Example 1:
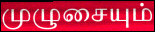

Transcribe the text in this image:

முழுசையும்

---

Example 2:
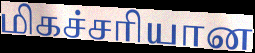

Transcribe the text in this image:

மிகச்சரியான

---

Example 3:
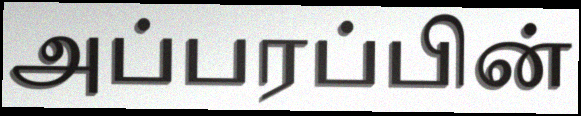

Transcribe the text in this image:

அப்பரப்பின்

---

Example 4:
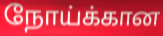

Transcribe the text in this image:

நோய்க்கான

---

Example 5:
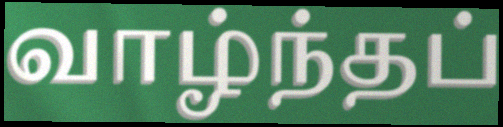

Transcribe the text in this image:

வாழ்ந்தப்